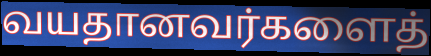
வயதானவர்களைத்